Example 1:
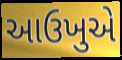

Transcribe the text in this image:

આઉખુએ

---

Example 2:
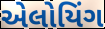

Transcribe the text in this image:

એલોયિંગ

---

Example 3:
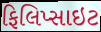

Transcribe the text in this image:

ફિલિપ્સાઇટ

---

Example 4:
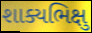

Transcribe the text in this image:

શાક્યભિક્ષુ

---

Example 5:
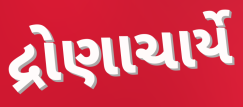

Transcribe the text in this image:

દ્રોણાચાર્યે